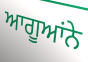
ਆਗੂਆਂਨੇ